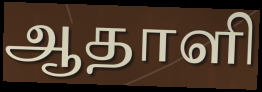
ஆதாளி